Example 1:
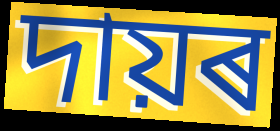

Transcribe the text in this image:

দায়ৰ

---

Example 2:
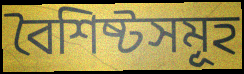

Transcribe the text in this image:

বৈশিষ্টসমূহ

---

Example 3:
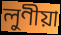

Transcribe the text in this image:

লুণীয়া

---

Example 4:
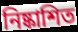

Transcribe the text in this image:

নিষ্কাশিত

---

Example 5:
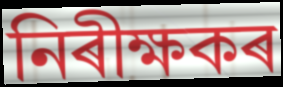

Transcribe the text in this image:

নিৰীক্ষকৰ